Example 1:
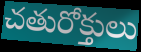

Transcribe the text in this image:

చతురోక్తులు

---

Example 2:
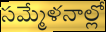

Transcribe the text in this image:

సమ్మేళనాల్లో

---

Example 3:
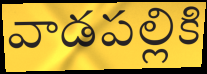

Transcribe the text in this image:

వాడపల్లికి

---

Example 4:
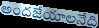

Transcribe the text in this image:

అందజేయాలనేది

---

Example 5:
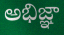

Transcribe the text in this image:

అభిజ్ఞా